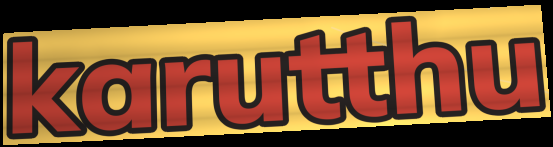
karutthu